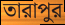
তারাপুর